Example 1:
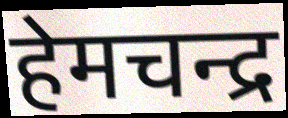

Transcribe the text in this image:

हेमचन्द्र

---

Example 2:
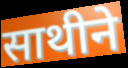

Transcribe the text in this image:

साथीने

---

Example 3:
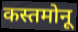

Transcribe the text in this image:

कस्तमोनू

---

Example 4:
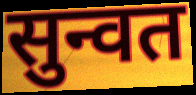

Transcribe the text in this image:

सुन्वत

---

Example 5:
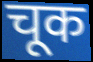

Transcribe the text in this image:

चूक